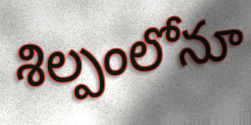
శిల్పంలోనూ